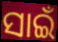
ସାଇଁ